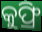
କୁଫ୍ରି